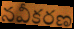
నవీకరణ